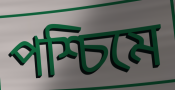
পশ্চিমে